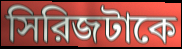
সিরিজটাকে